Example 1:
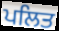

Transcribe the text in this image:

ਪਲਿਤ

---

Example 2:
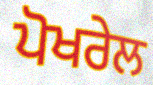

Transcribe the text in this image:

ਪੋਖਰੇਲ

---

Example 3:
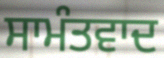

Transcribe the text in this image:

ਸਾਮੰਤਵਾਦ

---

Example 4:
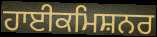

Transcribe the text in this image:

ਹਾਈਕਮਿਸ਼ਨਰ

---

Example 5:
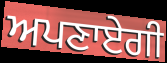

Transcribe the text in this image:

ਅਪਣਾਏਗੀ